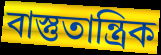
বাস্তুতান্ত্রিক